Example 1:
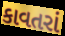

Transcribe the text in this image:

કાવતરાં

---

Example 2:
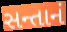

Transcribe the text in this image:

સન્તાનં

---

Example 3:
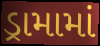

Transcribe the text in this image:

ડ્રામામાં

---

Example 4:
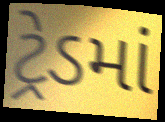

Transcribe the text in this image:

ટ્રેડમાં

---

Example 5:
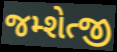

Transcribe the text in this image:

જમ્શેત્જી